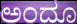
ಅಂದೂ